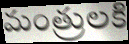
మంత్రులకి